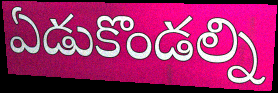
ఏడుకొండల్ని